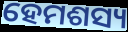
ହେମଶସ୍ୟ